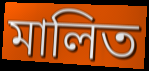
মালিত